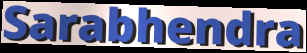
Sarabhendra